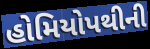
હોમિયોપથીની